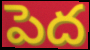
పెద